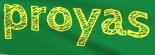
proyas